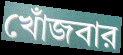
খোঁজবার